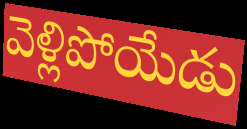
వెళ్లిపోయేడు